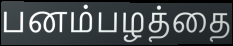
பனம்பழத்தை